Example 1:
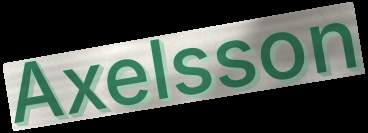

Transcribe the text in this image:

Axelsson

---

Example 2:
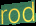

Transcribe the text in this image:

rod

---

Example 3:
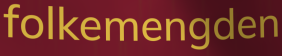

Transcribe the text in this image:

folkemengden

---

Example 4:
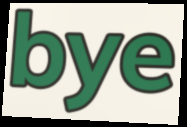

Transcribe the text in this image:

bye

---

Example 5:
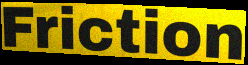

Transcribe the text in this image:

Friction